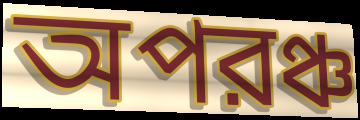
অপরঞ্চ